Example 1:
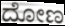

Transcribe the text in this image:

ದೋಣ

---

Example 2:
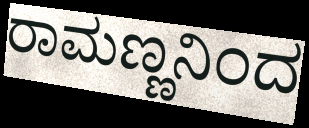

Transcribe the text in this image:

ರಾಮಣ್ಣನಿಂದ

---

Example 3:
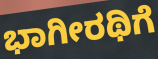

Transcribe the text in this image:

ಭಾಗೀರಥಿಗೆ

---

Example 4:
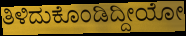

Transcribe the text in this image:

ತಿಳಿದುಕೊಂಡಿದ್ದೀಯೋ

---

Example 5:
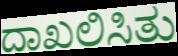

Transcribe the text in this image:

ದಾಖಲಿಸಿತು